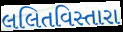
લલિતવિસ્તારા